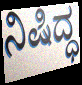
ನಿಷಿದ್ಧ